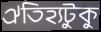
ঐতিহ্যটুকু